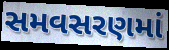
સમવસરણમાં